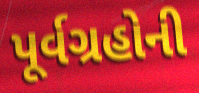
પૂર્વગ્રહોની